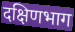
दक्षिणभाग